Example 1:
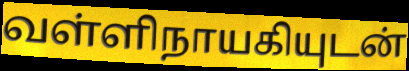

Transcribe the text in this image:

வள்ளிநாயகியுடன்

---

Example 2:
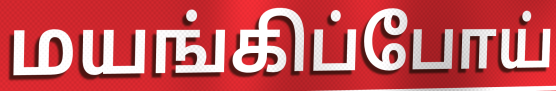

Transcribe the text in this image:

மயங்கிப்போய்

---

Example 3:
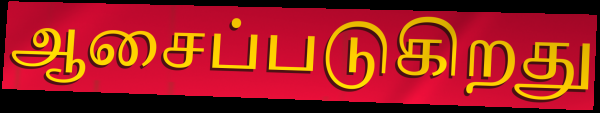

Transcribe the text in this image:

ஆசைப்படுகிறது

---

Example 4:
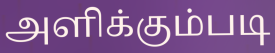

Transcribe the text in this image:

அளிக்கும்படி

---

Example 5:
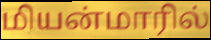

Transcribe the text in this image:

மியன்மாரில்